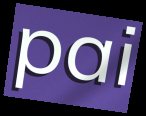
pai